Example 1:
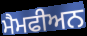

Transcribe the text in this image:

ਮੈਮਫੀਅਨ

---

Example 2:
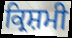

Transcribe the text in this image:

ਕ੍ਰਿਸ਼ਮੀ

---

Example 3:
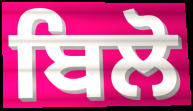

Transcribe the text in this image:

ਬਿਲੋ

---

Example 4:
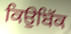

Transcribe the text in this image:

ਕਿਉਬਿੱਕ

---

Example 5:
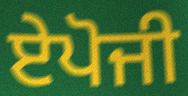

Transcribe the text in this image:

ਏਪੋਜੀ